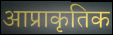
आप्राकृतिक